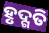
ହୃଦ୍ଗତି